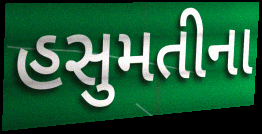
હસુમતીના